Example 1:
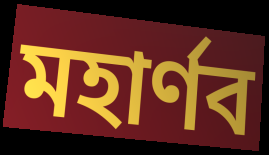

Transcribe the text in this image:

মহার্ণব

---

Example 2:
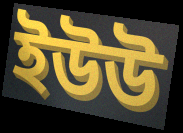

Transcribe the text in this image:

ইউউ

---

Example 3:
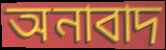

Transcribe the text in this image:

অনাবাদ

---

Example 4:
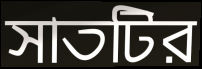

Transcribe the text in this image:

সাতটির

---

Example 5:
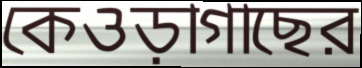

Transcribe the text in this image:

কেওড়াগাছের